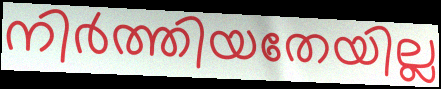
നിർത്തിയതേയില്ല